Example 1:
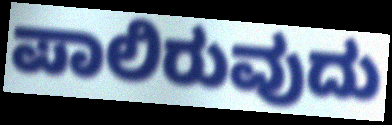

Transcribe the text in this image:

ಪಾಲಿರುವುದು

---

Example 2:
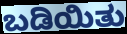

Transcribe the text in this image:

ಬಡಿಯಿತು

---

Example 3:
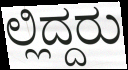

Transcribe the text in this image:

ಲ್ಲಿದ್ದರು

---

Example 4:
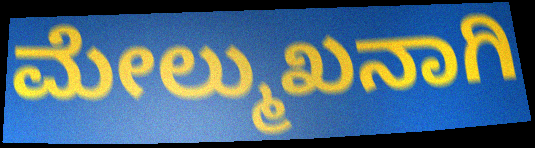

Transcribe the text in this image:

ಮೇಲ್ಮುಖನಾಗಿ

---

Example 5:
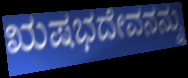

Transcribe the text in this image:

ಋಷಭದೇವನನ್ನು